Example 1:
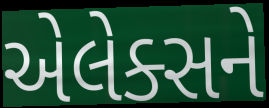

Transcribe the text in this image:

એલેક્સને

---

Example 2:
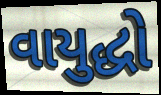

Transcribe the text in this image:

વાયુદ્ધો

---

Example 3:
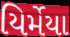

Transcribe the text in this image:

યિર્મેયા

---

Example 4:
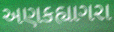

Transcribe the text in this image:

અણકહ્યાગરા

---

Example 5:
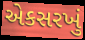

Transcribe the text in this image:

એકસરખું